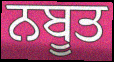
ਨਬੂਤ